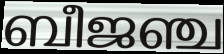
ബീജഞ്ച